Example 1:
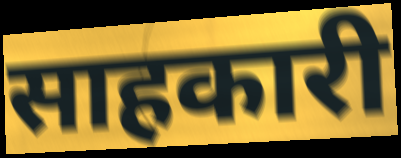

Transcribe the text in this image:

साहकारी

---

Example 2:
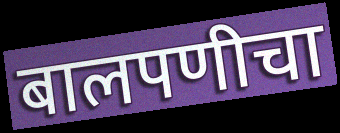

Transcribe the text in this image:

बालपणीचा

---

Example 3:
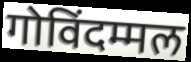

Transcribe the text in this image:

गोविंदम्मल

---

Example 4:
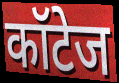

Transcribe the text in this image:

कॉटेज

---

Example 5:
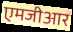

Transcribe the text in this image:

एमजीआर